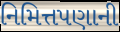
નિમિત્તપણાની